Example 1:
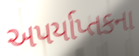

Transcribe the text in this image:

અપર્યાપ્તકના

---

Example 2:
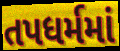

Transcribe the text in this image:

તપધર્મમાં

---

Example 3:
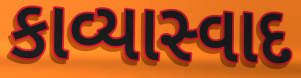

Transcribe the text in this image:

કાવ્યાસ્વાદ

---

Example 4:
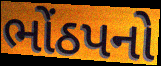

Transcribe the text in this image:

ભોંઠપનો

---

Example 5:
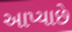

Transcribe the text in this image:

આપ્યાછે